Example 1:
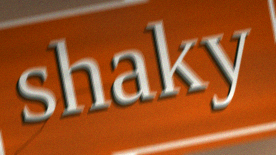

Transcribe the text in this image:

shaky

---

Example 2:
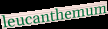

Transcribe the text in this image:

leucanthemum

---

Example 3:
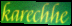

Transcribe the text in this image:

karechhe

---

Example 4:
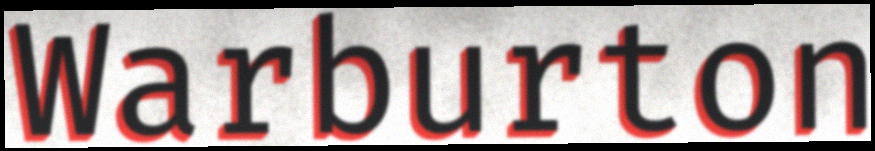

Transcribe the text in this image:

Warburton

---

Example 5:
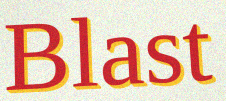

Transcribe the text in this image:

Blast